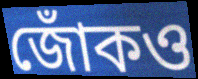
জোঁকও